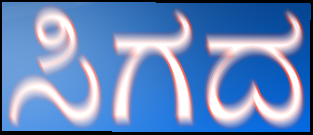
ಸಿಗದ